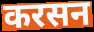
करसन